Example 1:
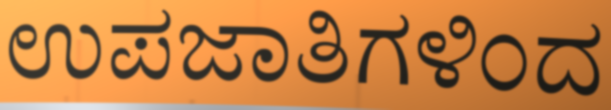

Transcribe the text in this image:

ಉಪಜಾತಿಗಳಿಂದ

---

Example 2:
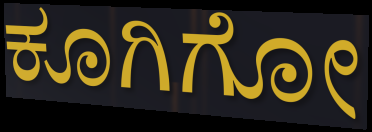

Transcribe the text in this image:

ಕೂಗಿಗೋ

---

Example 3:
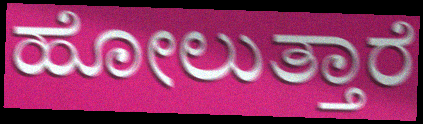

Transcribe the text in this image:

ಹೋಲುತ್ತಾರೆ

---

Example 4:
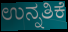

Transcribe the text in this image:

ಉನ್ನತಿಕೆ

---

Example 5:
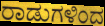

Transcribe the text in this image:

ರಾಡುಗಳಿಂದ